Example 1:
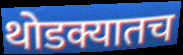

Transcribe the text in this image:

थोडक्यातच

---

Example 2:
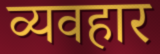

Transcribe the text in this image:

व्यवहार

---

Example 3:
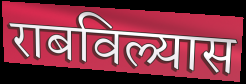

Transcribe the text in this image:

राबविल्यास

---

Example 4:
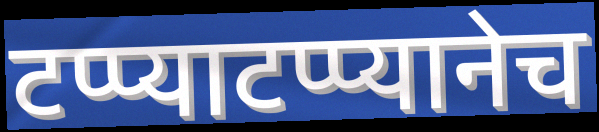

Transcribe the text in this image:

टप्प्याटप्प्यानेच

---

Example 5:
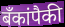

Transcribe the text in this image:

बँकांपैकी